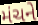
મંચને